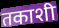
तकाशी